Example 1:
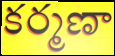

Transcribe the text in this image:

కర్మణా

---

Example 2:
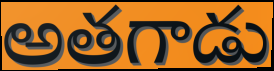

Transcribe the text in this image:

అతగాడు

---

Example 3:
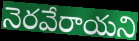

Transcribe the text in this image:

నెరవేరాయని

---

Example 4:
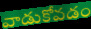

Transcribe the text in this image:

వాడుకోవడం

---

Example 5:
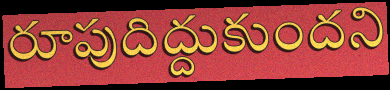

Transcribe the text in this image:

రూపుదిద్దుకుందని